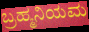
ಬ್ರಹ್ಮನಿಯಮ